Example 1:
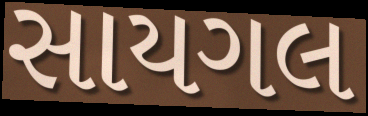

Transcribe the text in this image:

સાયગલ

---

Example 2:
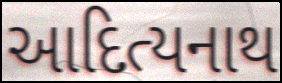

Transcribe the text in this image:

આદિત્યનાથ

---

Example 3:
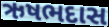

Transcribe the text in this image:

ઋષભદાસ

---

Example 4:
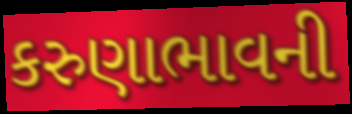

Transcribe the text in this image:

કરુણાભાવની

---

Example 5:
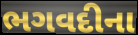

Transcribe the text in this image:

ભગવદીના